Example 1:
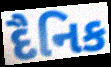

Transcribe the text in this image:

દૈનિક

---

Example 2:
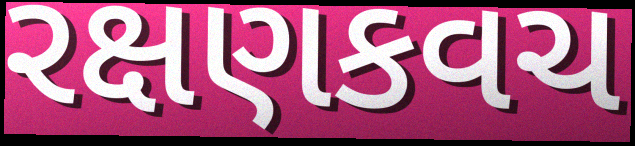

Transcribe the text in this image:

રક્ષણકવચ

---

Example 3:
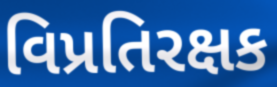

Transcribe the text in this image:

વિપ્રતિરક્ષક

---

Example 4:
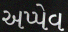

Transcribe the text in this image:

અપ્પેવ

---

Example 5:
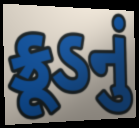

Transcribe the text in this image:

ક્રૂડનું